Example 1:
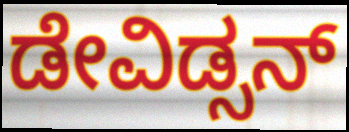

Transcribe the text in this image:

ಡೇವಿಡ್ಸನ್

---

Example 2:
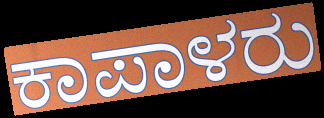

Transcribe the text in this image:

ಕಾಪಾಳರು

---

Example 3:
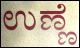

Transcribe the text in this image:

ಉಣ್ಣೆ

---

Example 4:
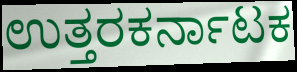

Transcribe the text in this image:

ಉತ್ತರಕರ್ನಾಟಕ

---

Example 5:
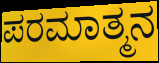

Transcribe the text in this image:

ಪರಮಾತ್ಮನ